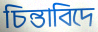
চিন্তাবিদে